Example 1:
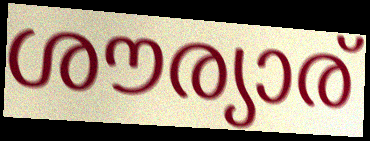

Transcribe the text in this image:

ശൗര്യാര്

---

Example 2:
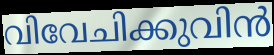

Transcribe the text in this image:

വിവേചിക്കുവിൻ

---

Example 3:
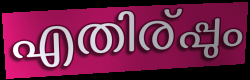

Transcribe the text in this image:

എതിര്പ്പും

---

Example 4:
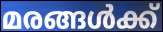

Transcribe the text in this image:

മരങ്ങൾക്ക്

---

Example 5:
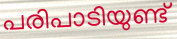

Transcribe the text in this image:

പരിപാടിയുണ്ട്